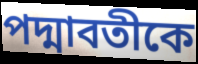
পদ্মাবতীকে